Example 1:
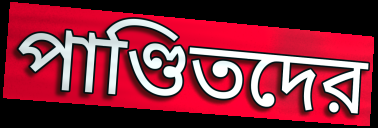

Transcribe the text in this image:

পাণ্ডিতদের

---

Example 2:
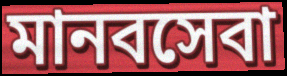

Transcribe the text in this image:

মানবসেবা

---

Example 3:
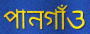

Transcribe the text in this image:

পানগাঁও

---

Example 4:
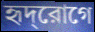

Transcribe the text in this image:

হৃদ্‌রোগে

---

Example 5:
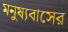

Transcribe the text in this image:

মনুষ্যবাসের